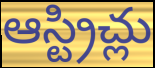
ఆస్ట్రిచ్లు